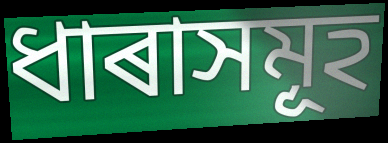
ধাৰাসমূহ